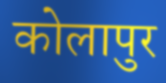
कोलापुर